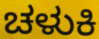
ಚಳುಕಿ